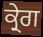
ਕ੍ਰੇਗ